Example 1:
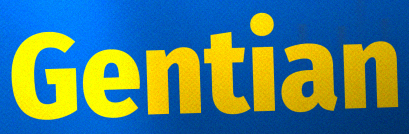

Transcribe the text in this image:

Gentian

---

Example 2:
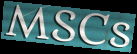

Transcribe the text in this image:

MSCs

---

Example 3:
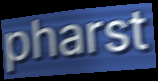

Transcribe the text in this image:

pharst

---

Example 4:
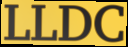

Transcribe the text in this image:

LLDC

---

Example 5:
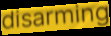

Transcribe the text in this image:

disarming